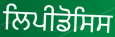
ਲਿਪੀਡੋਸਿਸ